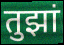
तुझां